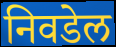
निवडेल